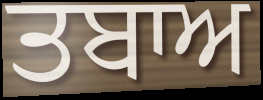
ਤਬਾਅ